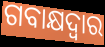
ଗବାକ୍ଷଦ୍ୱାର